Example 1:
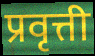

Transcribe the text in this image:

प्रवृत्ती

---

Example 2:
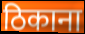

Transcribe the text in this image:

ठिकाना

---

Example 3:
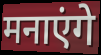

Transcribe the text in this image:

मनाएंगे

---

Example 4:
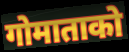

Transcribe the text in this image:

गोमाताको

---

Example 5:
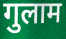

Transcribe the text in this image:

गुलाम